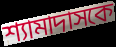
শ্যামাদাসকে